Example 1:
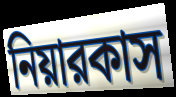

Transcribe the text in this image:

নিয়ারকাস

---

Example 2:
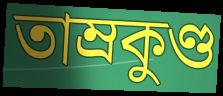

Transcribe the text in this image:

তাম্রকুণ্ড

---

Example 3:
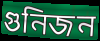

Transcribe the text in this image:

গুনিজন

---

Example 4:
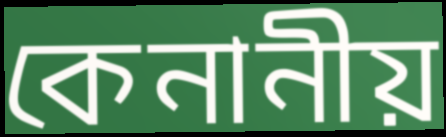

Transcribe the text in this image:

কেনানীয়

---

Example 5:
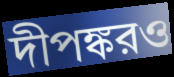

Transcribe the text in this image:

দীপঙ্করও